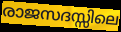
രാജസദസ്സിലെ